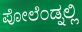
ಪೋಲೆಂಡ್ನಲ್ಲಿ